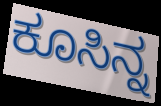
ಕೂಸಿನ್ನ